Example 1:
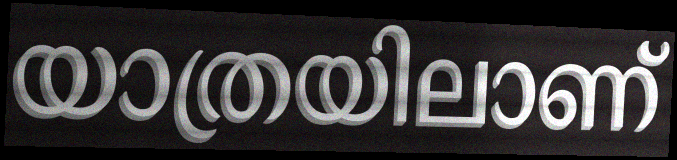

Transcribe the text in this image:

യാത്രയിലാണ്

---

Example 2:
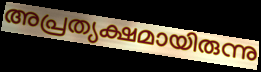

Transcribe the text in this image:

അപ്രത്യക്ഷമായിരുന്നു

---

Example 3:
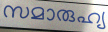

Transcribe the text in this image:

സമാരുഹ്യ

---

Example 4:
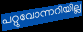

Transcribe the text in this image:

പറ്റുവോന്നറിയില്ല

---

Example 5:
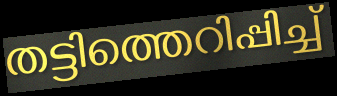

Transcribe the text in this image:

തട്ടിത്തെറിപ്പിച്ച്